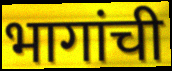
भागांची